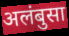
अलंबुसा